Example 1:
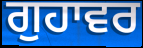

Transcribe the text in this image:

ਗੁਹਾਵਰ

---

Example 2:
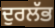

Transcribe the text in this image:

ਦੁਰਲੱਭ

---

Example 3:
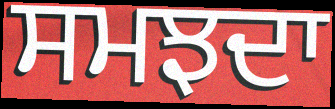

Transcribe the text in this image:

ਸਮਝਦਾ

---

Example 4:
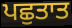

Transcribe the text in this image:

ਪਛੁਤਾਤ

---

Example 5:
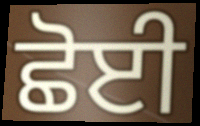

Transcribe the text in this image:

ਛੋਈ